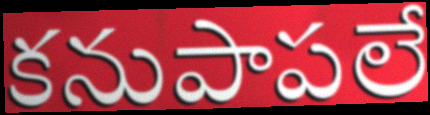
కనుపాపలే